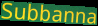
Subbanna